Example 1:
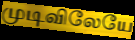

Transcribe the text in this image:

முடிவிலேயே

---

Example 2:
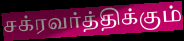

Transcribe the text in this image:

சக்ரவர்த்திக்கும்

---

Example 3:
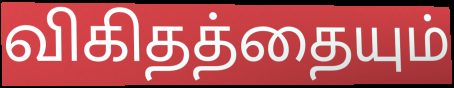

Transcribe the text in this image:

விகிதத்தையும்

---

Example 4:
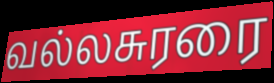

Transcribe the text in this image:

வல்லசுரரை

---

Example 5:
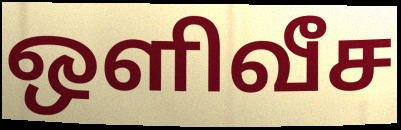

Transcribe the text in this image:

ஒளிவீச